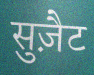
सुज़ैट